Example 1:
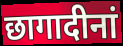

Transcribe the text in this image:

छागादीनां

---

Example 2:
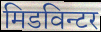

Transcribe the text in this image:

मिडविन्टर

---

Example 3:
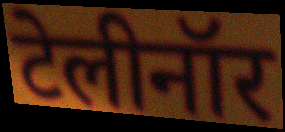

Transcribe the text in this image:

टेलीनॉर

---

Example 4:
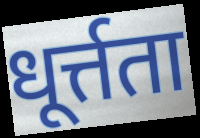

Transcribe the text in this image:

धूर्त्तता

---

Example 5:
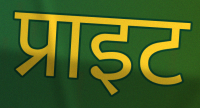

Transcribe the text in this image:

प्राइट